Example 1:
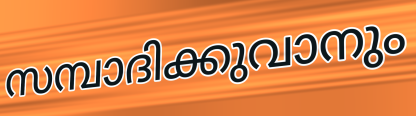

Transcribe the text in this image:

സമ്പാദിക്കുവാനും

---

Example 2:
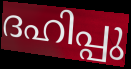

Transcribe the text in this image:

ദഹിപ്പു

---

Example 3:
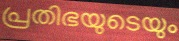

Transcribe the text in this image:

പ്രതിഭയുടെയും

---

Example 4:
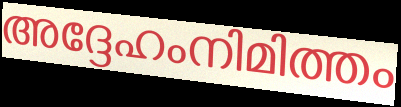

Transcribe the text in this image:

അദ്ദേഹംനിമിത്തം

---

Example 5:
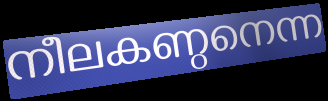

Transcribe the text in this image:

നീലകണ്ഠനെന്ന